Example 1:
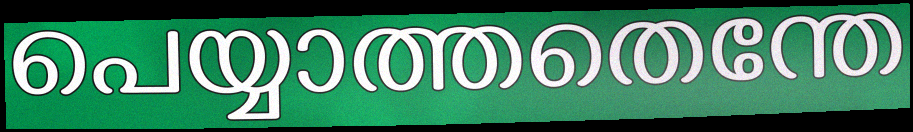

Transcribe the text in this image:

പെയ്യാത്തതെന്തേ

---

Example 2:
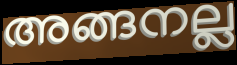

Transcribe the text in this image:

അങ്ങനല്ല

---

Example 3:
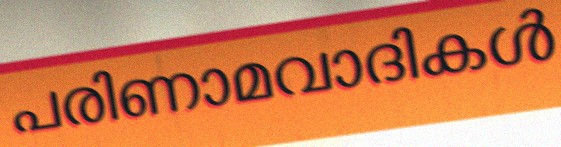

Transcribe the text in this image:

പരിണാമവാദികൾ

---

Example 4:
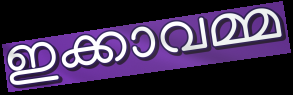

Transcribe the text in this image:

ഇക്കാവമ്മ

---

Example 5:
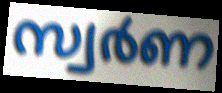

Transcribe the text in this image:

സ്വർണ